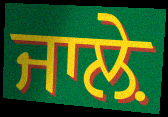
ਜਾਲ਼ੇ